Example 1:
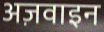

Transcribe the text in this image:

अज़वाइन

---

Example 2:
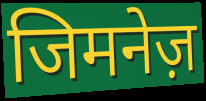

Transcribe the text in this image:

जिमनेज़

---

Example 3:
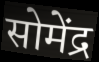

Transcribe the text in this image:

सोमेंद्र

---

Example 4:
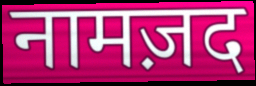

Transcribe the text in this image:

नामज़द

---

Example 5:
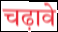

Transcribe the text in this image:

चढ़ावे